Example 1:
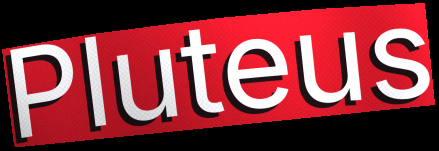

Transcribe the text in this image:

Pluteus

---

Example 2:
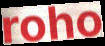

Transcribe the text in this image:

roho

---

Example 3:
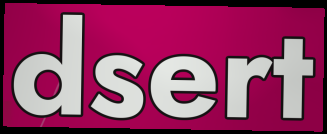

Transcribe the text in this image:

dsert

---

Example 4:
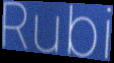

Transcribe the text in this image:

Rubi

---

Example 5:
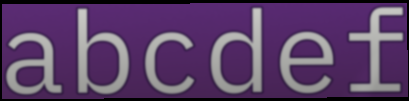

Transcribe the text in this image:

abcdef